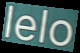
lelo